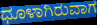
ಧೂಳಾಗಿರುವಾಗ